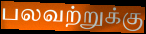
பலவற்றுக்கு